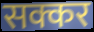
सक्कर